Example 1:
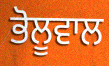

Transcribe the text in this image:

ਭੋਲੂਵਾਲ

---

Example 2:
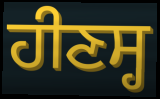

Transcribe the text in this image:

ਹੀਣਸ੍ਹ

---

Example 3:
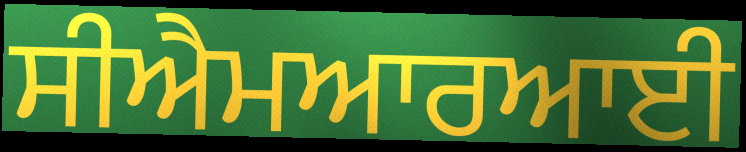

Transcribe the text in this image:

ਸੀਐਮਆਰਆਈ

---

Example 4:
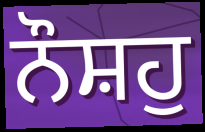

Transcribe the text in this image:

ਨੌਸ਼ਹੁ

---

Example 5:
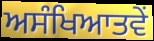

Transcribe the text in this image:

ਅਸੰਖਿਆਤਵੇਂ